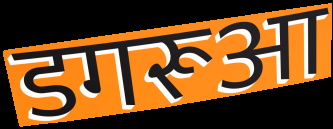
डगरूआ